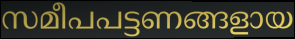
സമീപപട്ടണങ്ങളായ